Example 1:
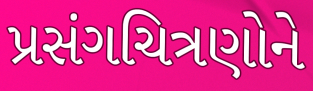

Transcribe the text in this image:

પ્રસંગચિત્રણોને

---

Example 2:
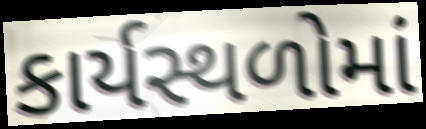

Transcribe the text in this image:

કાર્યસ્થળોમાં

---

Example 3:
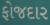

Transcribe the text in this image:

ફોજદાર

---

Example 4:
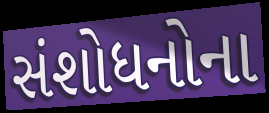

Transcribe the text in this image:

સંશોધનોના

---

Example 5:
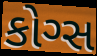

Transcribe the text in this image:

કોગ્સ